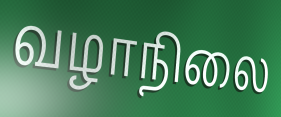
வழாநிலை